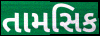
તામસિક